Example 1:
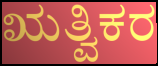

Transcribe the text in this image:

ಋತ್ವಿಕರ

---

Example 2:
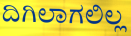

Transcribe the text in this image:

ದಿಗಿಲಾಗಲಿಲ್ಲ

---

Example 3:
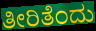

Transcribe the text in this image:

ತೀರಿತೆಂದು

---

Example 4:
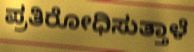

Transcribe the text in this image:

ಪ್ರತಿರೋಧಿಸುತ್ತಾಳೆ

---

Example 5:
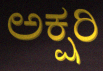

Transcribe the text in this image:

ಅಕ್ಷರಿ